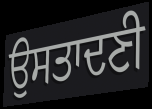
ਉਸਤਾਦਣੀ